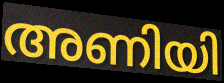
അണിയി